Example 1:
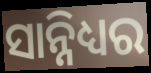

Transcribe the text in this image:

ସାନ୍ନିଧ୍ୟର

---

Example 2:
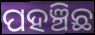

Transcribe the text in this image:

ପହଞ୍ଚିଛ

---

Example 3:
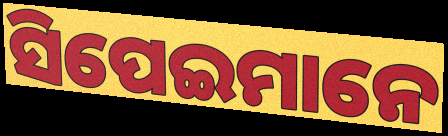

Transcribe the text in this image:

ସିପେଇମାନେ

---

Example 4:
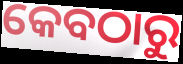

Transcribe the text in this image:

କେବଠାରୁ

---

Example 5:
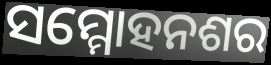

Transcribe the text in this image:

ସମ୍ମୋହନଶର